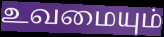
உவமையும்